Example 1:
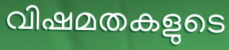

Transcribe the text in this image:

വിഷമതകളുടെ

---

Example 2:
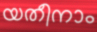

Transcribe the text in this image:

യതീനാം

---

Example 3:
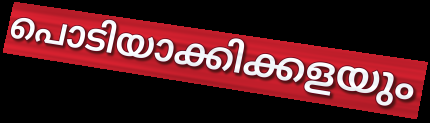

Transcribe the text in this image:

പൊടിയാക്കിക്കളയും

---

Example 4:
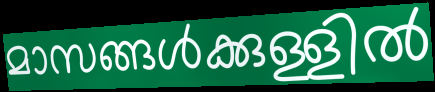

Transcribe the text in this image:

മാസങ്ങൾക്കുള്ളിൽ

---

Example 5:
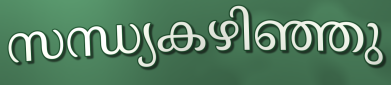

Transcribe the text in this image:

സന്ധ്യകഴിഞ്ഞു